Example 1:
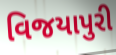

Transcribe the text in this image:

વિજયાપુરી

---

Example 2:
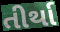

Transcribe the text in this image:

તીર્થા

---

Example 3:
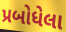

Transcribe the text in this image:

પ્રબોધેલા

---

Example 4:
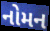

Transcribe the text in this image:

નોમન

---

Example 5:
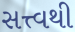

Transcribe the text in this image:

સત્ત્વથી